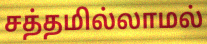
சத்தமில்லாமல்